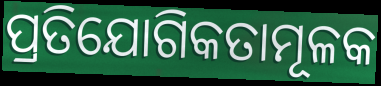
ପ୍ରତିଯୋଗିକତାମୂଳକ